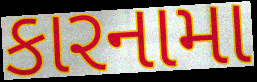
કારનામા